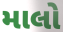
માલો